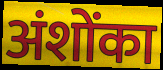
अंशोंका